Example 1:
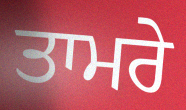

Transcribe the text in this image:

ਤਾਮਰੇ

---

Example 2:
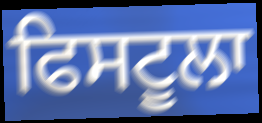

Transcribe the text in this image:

ਫਿਸਟੂਲਾ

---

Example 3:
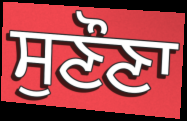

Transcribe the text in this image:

ਸੁਣੌਣਾ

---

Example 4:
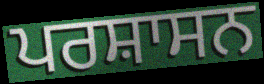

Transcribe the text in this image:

ਪਰਸ਼ਾਸਨ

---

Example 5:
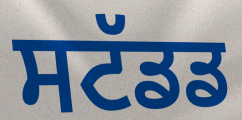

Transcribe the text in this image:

ਸਟੱਡਡ